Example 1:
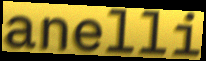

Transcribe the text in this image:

anelli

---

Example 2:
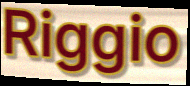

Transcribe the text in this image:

Riggio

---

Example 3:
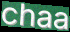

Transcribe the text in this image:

chaa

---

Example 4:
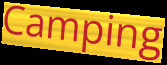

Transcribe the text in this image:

Camping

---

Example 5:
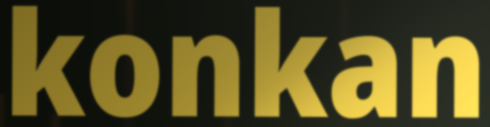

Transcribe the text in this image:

konkan